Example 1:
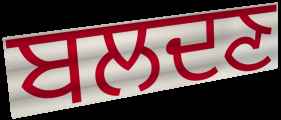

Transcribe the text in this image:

ਬਲਦਣ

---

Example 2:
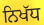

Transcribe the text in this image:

ਨਿਖੱਧ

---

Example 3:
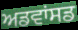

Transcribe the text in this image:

ਅਡਵਾਂਸਡ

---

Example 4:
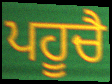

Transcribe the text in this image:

ਪਹੂਚੈ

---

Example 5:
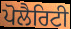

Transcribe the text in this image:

ਪੋਲੈਰਿਟੀ